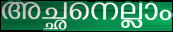
അച്ഛനെല്ലാം